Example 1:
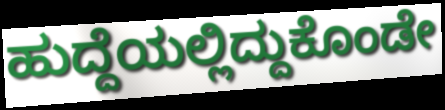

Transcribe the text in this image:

ಹುದ್ದೆಯಲ್ಲಿದ್ದುಕೊಂಡೇ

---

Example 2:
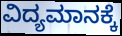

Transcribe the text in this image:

ವಿದ್ಯಮಾನಕ್ಕೆ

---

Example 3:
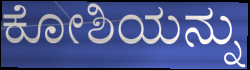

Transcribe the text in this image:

ಕೋಶಿಯನ್ನು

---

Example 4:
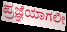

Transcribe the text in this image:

ಪ್ರಜ್ಞೆಯಾಗಲೀ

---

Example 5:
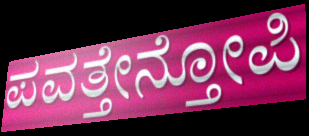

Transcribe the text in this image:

ಪವತ್ತೇನ್ತೋಪಿ